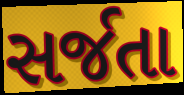
સર્જતા